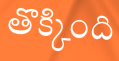
తొక్కింది